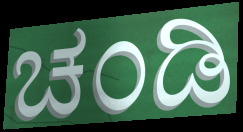
ಚಂಡಿ